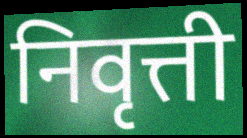
निवृत्ती